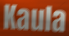
Kaula